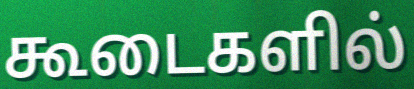
கூடைகளில்